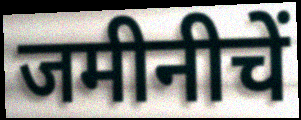
जमीनीचें